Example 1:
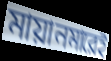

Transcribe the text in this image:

মায়ানমারেই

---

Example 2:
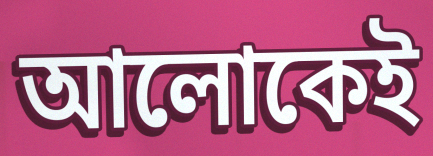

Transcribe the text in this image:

আলোকেই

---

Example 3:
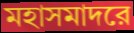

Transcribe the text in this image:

মহাসমাদরে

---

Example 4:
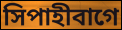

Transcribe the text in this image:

সিপাহীবাগে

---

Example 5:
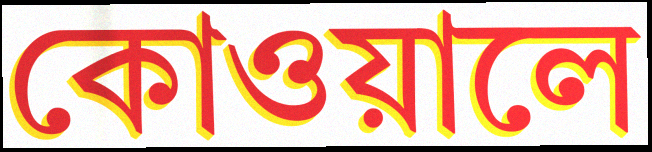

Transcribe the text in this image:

কোওয়ালে